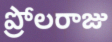
ప్రోలరాజు